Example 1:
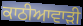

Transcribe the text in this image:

ਕਾਠੀਆਵਾੜੀ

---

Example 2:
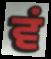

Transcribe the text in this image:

ਵਂ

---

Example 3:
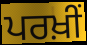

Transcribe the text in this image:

ਪਰਖ਼ੀਂ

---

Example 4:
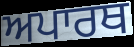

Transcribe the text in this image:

ਅਪਾਰਥ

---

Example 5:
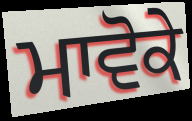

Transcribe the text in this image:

ਮਾਵੋਕੇ